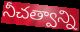
నీచత్వాన్ని